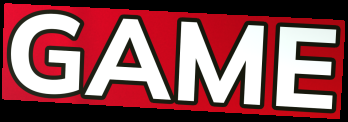
GAME